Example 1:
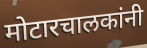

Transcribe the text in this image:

मोटारचालकांनी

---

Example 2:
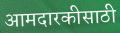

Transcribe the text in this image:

आमदारकीसाठी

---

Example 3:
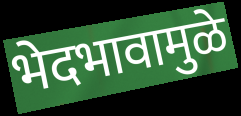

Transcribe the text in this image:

भेदभावामुळे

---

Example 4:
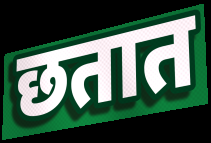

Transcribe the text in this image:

छतात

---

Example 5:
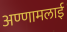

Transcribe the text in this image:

अण्णामलाई